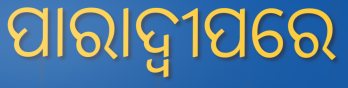
ପାରାଦ୍ୱୀପରେ